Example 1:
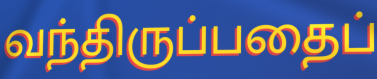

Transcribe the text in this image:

வந்திருப்பதைப்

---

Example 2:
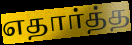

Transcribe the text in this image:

எதார்த்த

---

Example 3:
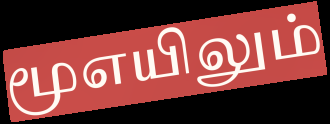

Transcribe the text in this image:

மூஎயிலும்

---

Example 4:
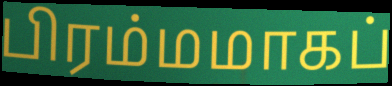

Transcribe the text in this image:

பிரம்மமாகப்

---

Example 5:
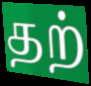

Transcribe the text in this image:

தற்